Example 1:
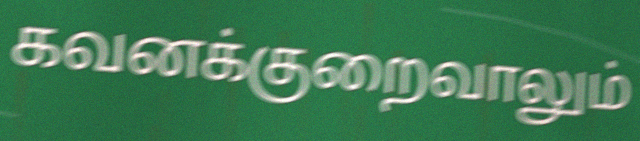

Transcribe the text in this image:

கவனக்குறைவாலும்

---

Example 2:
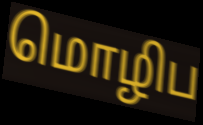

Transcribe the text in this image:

மொழிப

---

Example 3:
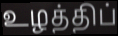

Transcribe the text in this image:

உழத்திப்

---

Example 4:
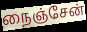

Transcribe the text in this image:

நைஞ்சேன்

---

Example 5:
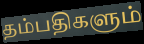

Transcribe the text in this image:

தம்பதிகளும்